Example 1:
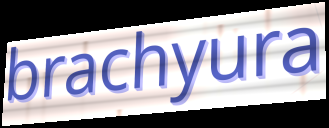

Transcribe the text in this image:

brachyura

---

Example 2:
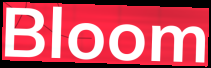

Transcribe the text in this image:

Bloom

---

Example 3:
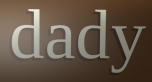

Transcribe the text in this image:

dady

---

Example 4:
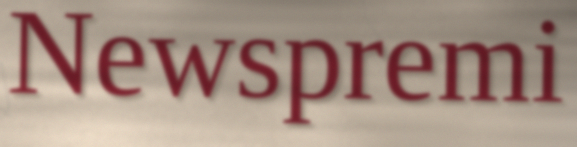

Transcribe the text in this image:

Newspremi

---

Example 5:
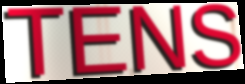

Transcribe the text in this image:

TENS